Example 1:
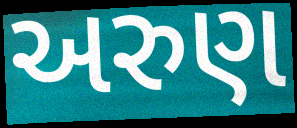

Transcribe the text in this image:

અરુણ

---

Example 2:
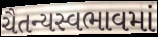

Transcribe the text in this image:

ચૈતન્યસ્વભાવમાં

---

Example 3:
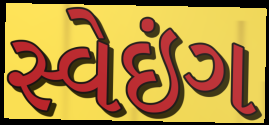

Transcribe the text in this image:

સ્વેઇંગ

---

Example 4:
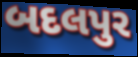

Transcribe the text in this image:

બદલપુર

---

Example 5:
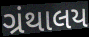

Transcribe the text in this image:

ગ્રંથાલય